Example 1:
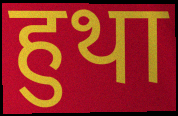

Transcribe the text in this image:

हुथा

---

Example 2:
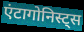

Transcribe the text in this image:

एंटागोनिस्ट्स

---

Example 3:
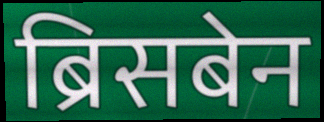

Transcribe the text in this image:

ब्रिसबेन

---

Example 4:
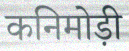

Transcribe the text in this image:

कनिमोड़ी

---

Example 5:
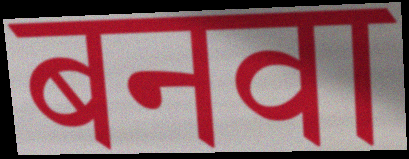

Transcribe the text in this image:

बनवा